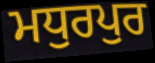
ਮਧੁਰਪੁਰ